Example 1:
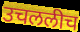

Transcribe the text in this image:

उचललीच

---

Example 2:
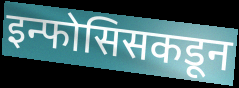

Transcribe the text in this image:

इन्फोसिसकडून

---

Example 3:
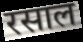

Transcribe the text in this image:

रसाल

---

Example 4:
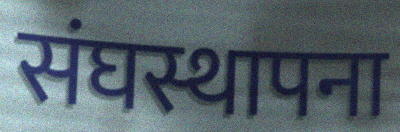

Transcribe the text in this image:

संघस्थापना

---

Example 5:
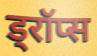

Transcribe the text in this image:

ड्रॉप्स